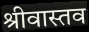
श्रीवास्‍तव